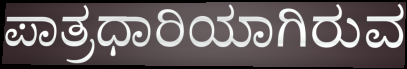
ಪಾತ್ರಧಾರಿಯಾಗಿರುವ